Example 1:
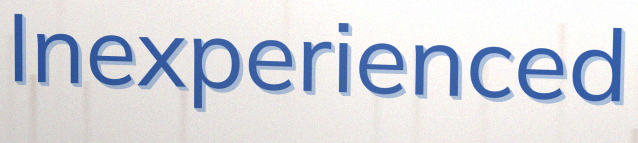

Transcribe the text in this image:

Inexperienced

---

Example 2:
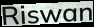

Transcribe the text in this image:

Riswan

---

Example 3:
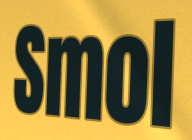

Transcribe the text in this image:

Smol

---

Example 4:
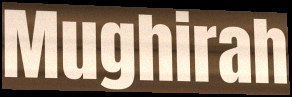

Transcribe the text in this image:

Mughirah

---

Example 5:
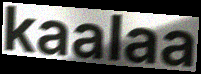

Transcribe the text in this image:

kaalaa